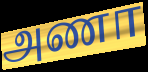
அணா